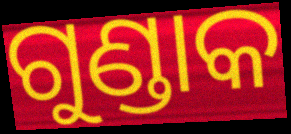
ଗୁଣ୍ଡାକ